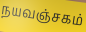
நயவஞ்சகம்